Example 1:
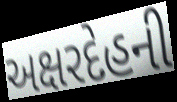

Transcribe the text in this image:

અક્ષરદેહની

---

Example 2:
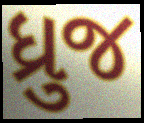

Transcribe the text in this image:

ધ્રુજ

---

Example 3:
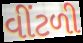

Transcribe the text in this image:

વીંટળી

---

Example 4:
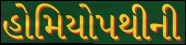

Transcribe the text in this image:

હોમિયોપથીની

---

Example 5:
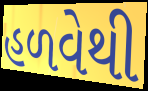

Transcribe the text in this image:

હળવેથી